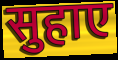
सुहाए